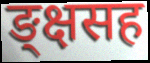
ङ्क्षसह